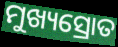
ମୁଖ୍ୟସ୍ରୋତ